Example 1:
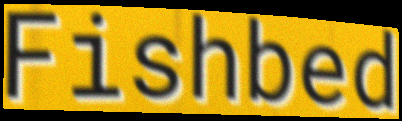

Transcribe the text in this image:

Fishbed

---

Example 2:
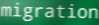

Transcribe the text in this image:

migration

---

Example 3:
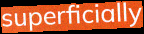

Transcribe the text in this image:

superficially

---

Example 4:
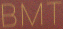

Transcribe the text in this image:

BMT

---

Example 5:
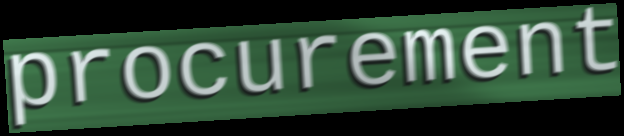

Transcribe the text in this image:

procurement